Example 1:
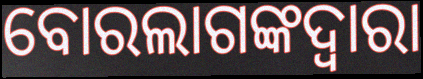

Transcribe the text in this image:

ବୋରଲାଗଙ୍କଦ୍ୱାରା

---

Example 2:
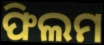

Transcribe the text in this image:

ଫିଲମ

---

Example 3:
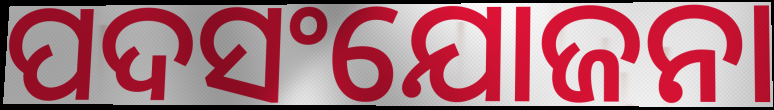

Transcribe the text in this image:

ପଦସଂଯୋଜନା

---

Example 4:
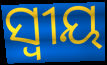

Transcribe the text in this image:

ସ୍ୱୀୟ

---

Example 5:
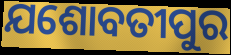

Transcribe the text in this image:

ଯଶୋବତୀପୁର